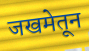
जखमेतून